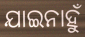
ଯାଇନାହୁଁ